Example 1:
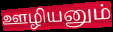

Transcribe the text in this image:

ஊழியனும்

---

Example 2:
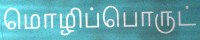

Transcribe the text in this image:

மொழிப்பொருட்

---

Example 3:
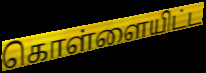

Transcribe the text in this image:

கொள்ளையிட்ட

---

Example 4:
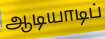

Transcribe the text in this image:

ஆடியாடிப்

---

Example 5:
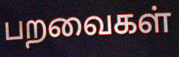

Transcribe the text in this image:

பறவைகள்